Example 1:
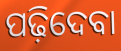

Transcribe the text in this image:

ପଢ଼ିଦେବା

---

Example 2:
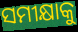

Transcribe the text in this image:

ସମୀକ୍ଷାକୁ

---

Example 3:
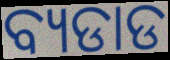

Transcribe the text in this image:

ବ୍ୟଡାଡ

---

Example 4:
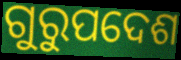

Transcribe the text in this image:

ଗୁରୁପଦେଶ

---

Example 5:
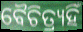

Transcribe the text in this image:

ବୈଚିତ୍ର୍ୟହିଁ